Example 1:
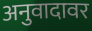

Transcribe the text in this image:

अनुवादावर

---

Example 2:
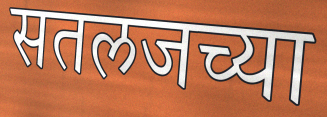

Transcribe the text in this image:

सतलजच्या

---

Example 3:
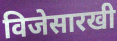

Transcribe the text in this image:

विजेसारखी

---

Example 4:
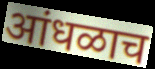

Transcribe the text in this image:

आंधळाच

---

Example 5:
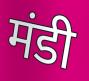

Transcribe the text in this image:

मंडी